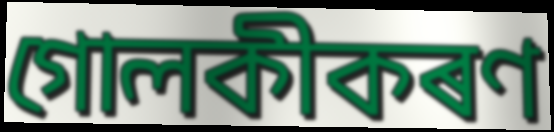
গোলকীকৰণ